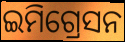
ଇମିଗ୍ରେସନ